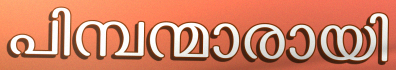
പിമ്പന്മാരായി